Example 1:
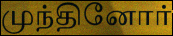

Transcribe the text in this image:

முந்தினோர்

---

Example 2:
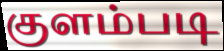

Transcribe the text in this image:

குளம்படி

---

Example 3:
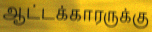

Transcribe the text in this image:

ஆட்டக்காரருக்கு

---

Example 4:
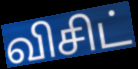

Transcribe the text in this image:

விசிட்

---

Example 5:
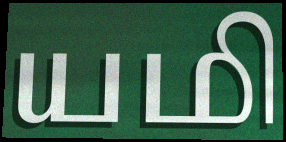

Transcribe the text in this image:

யமி